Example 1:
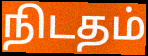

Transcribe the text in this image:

நிடதம்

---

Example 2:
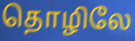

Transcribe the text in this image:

தொழிலே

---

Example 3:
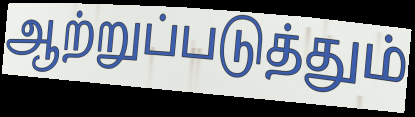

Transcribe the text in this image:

ஆற்றுப்படுத்தும்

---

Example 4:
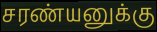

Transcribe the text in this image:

சரண்யனுக்கு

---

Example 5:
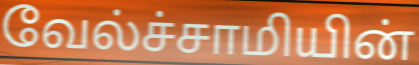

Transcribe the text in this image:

வேல்ச்சாமியின்